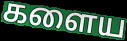
களைய